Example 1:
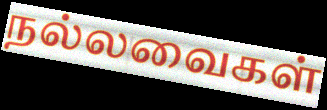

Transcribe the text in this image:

நல்லவைகள்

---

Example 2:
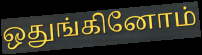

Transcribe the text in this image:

ஒதுங்கினோம்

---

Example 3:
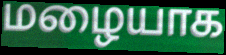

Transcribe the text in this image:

மழையாக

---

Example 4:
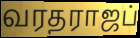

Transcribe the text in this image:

வரதராஜப்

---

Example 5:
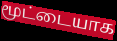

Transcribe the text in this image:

மூட்டையாக